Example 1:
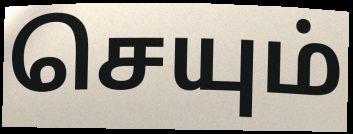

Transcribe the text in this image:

செயும்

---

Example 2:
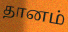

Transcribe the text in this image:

தானம்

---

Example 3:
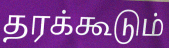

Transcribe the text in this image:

தரக்கூடும்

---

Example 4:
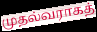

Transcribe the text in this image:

முதல்வராகத்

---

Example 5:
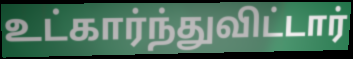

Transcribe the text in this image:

உட்கார்ந்துவிட்டார்